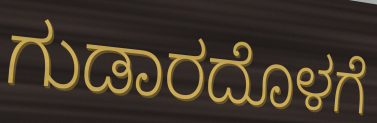
ಗುಡಾರದೊಳಗೆ